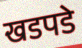
खडपडे